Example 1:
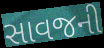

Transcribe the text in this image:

સાવજની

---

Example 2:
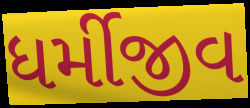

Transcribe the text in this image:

ધર્મીજીવ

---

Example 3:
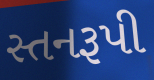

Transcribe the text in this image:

સ્તનરૂપી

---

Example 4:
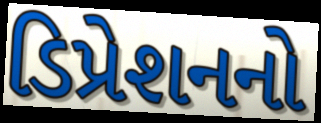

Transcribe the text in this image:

ડિપ્રેશનનો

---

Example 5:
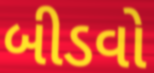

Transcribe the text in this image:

બીડવો